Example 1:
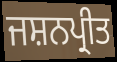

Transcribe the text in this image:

ਜਸ਼ਨਪ੍ਰੀਤ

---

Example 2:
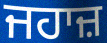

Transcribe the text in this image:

ਜਹਾਜ਼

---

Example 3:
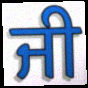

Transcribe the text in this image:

ਜੀ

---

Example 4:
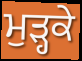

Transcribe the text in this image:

ਮੁੜ੍ਹਕੇ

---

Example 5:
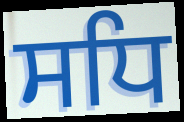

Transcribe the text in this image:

ਸਧਿ